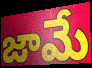
జామే